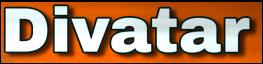
Divatar